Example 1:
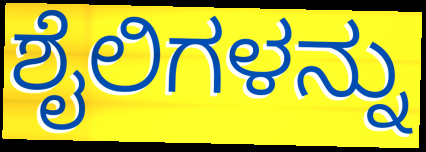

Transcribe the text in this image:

ಶೈಲಿಗಳನ್ನು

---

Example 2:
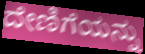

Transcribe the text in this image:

ದೇಣಿಗೆಯನ್ನು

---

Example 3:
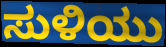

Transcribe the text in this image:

ಸುಳಿಯು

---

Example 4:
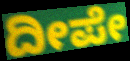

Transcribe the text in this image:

ದೀಪೇ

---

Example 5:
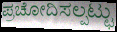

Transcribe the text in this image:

ಪ್ರಚೋದಿಸಲ್ಪಟ್ಟು